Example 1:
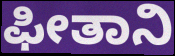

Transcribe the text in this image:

ಫೀತಾನಿ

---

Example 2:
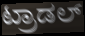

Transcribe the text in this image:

ಟ್ರಾಡಲ್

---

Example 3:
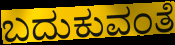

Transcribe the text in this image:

ಬದುಕುವಂತೆ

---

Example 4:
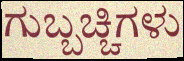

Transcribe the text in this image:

ಗುಬ್ಬಚ್ಚಿಗಳು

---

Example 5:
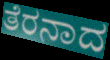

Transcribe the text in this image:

ತೆರನಾದ